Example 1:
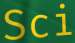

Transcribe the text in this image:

Sci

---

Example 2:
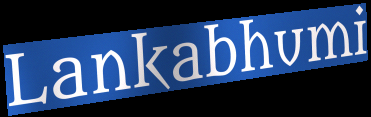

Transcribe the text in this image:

Lankabhumi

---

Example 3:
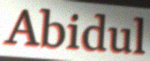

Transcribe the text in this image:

Abidul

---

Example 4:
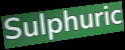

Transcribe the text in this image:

Sulphuric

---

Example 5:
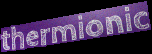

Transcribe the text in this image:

thermionic